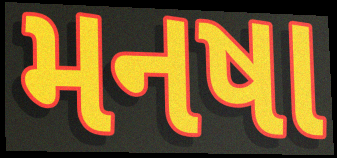
મનષા